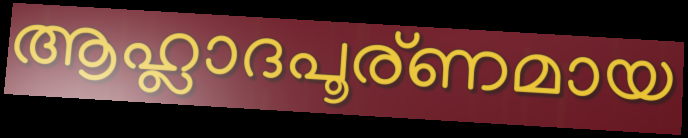
ആഹ്ലാദപൂര്ണമായ